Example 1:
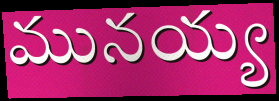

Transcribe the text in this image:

మునయ్య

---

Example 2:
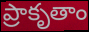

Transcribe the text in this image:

ప్రాకృతాం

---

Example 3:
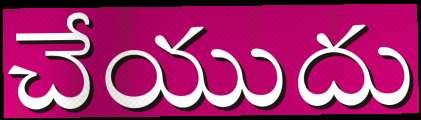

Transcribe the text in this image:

చేయుదు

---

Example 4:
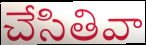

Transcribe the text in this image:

చేసితివా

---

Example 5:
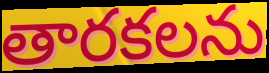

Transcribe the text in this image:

తారకలను